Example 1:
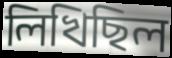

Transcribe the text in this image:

লিখিছিল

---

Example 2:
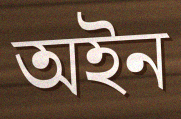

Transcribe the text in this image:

অইন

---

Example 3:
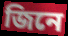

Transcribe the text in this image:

জিনে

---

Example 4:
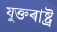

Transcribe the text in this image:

যুক্তৰাষ্ট্ৰ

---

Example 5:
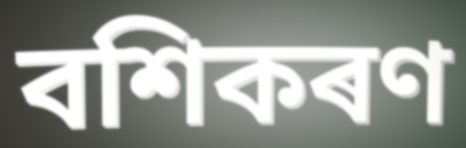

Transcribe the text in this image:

বশিকৰণ